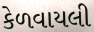
કેળવાયલી